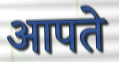
आपते